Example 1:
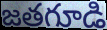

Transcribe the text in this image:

జతగూడి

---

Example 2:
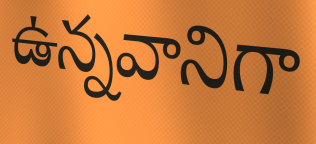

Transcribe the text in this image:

ఉన్నవానిగా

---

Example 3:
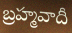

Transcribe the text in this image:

బ్రహ్మవాదీ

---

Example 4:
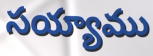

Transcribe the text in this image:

సయ్యాము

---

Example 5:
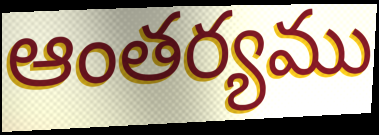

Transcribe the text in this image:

ఆంతర్యము